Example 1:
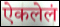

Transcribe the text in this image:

ऐकलेलं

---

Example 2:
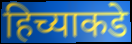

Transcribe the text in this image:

हिच्याकडे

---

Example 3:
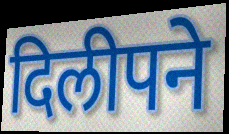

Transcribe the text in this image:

दिलीपने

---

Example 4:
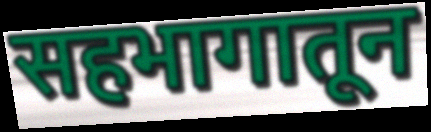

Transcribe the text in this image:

सहभागातून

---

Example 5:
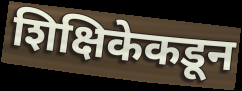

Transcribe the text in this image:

शिक्षिकेकडून